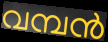
വമ്പൻ